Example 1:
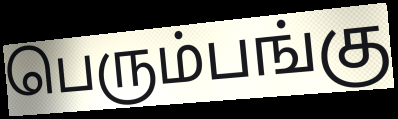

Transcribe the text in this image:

பெரும்பங்கு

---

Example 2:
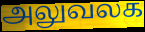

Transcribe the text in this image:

அலுவலக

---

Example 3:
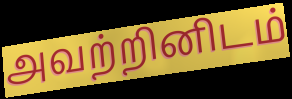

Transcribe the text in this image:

அவற்றினிடம்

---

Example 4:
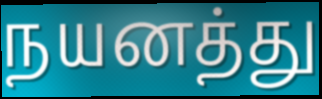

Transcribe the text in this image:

நயனத்து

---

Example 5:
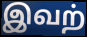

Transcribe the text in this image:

இவற்